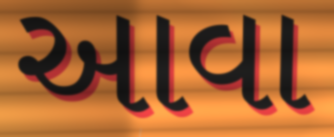
આવા